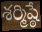
శర్మిష్ఠే